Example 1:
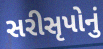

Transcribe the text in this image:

સરીસૃપોનું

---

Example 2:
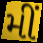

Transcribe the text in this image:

મીં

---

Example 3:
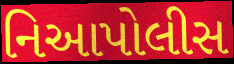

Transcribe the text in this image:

નિઆપોલીસ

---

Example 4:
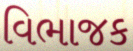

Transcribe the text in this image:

વિભાજક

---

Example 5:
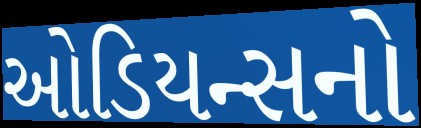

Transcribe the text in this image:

ઓડિયન્સનો